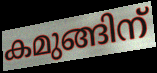
കമുങ്ങിന്